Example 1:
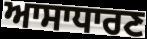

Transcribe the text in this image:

ਆਸਾਧਾਰਣ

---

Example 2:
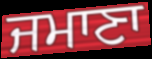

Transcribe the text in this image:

ਜਮਾਣਾ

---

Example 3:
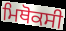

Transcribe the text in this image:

ਮਿਥੋਕਸੀ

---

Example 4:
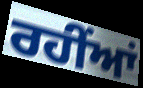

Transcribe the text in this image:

ਰਹੀਂਆਂ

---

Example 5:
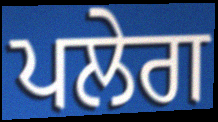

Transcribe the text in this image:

ਪਲੇਗ